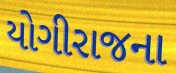
યોગીરાજના